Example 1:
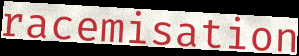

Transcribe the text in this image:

racemisation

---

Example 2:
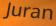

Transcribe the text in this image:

Juran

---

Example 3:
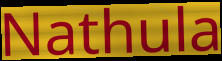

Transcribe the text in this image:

Nathula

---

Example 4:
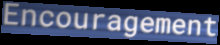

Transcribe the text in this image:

Encouragement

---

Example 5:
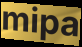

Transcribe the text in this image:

mipa